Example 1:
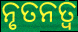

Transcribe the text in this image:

ନୃତନତ୍ୱ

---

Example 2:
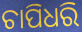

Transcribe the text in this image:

ଚାପିଧରି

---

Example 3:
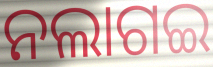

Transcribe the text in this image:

ନଲାଗଇ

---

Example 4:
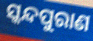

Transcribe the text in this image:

ସ୍କନ୍ଦପୁରାଣ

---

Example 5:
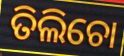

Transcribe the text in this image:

ତିଲିଚୋ